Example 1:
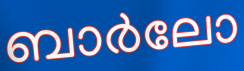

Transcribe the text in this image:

ബാർലോ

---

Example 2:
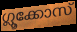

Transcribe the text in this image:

ഗ്ലൂക്കോസ്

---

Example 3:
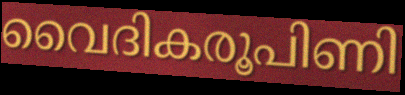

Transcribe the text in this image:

വൈദികരൂപിണി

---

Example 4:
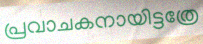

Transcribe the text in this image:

പ്രവാചകനായിട്ടത്രേ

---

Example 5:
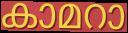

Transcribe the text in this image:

കാമറാ